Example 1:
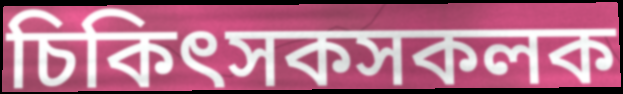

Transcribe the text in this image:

চিকিৎসকসকলক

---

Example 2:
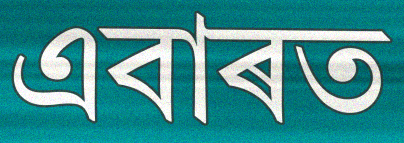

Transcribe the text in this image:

এবাৰত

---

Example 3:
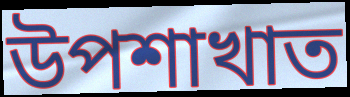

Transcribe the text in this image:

উপশাখাত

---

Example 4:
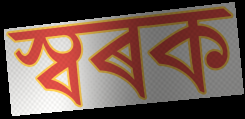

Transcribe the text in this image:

স্বৰক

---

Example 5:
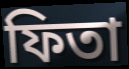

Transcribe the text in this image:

ফিতা